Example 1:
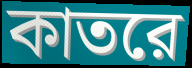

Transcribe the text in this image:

কাতরে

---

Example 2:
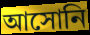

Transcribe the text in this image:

আসোনি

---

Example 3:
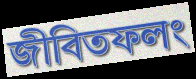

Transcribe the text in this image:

জীবিতফলং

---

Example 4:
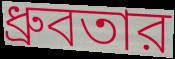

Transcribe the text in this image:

ধ্রুবতার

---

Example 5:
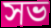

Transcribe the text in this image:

সভ